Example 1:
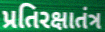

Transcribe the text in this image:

પ્રતિરક્ષાતંત્ર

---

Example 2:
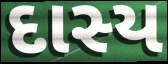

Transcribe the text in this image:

દાસ્ય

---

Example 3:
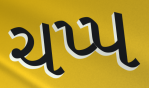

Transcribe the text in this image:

ચપ્પ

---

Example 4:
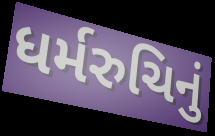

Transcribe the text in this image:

ધર્મરુચિનું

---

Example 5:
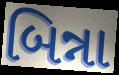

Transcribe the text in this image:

બિન્ના